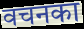
वचनका